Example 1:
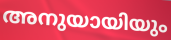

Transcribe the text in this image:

അനുയായിയും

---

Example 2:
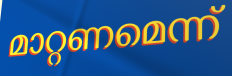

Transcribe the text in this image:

മാറ്റണമെന്ന്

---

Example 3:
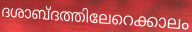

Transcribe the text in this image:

ദശാബ്ദത്തിലേറെക്കാലം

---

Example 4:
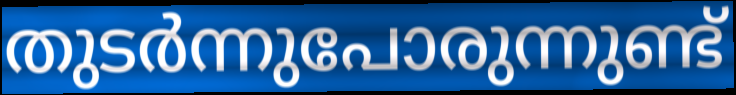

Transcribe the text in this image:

തുടർന്നുപോരുന്നുണ്ട്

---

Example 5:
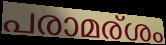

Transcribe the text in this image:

പരാമര്ശം